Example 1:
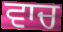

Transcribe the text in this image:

ਵਾਚ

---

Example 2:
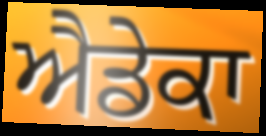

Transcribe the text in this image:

ਐਡੇਕਾ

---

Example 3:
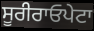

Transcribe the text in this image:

ਸੂਰੀਰਾਓਪੇਟਾ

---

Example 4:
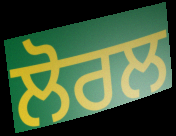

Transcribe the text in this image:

ਲੋਰਲ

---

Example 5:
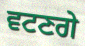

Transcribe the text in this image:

ਵਟਣਗੇ